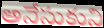
అనేసుకుని